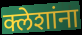
क्लेशांना